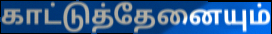
காட்டுத்தேனையும்